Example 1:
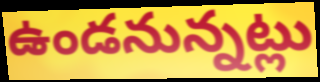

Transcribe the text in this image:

ఉండనున్నట్లు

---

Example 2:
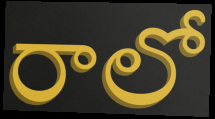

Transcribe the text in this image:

రాలో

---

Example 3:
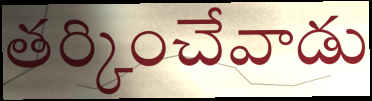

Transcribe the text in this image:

తర్కించేవాడు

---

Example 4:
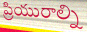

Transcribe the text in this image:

ప్రియురాల్ని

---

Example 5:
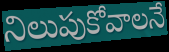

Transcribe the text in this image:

నిలుపుకోవాలనే